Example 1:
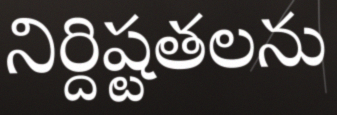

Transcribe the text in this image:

నిర్దిష్టతలను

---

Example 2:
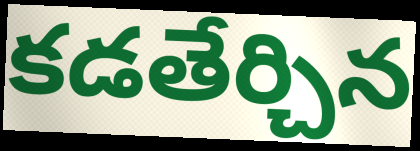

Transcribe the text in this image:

కడతేర్చిన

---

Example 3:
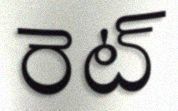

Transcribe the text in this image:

రెట్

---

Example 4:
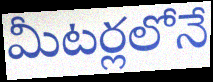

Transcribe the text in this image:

మీటర్లలోనే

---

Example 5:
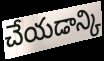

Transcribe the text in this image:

చేయడాన్కి